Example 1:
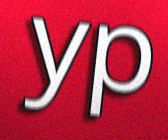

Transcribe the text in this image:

yp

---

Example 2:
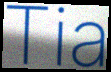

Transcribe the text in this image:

Tia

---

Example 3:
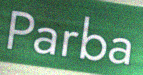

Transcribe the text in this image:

Parba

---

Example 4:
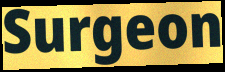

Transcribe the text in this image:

Surgeon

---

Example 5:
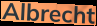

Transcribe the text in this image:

Albrecht